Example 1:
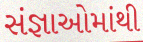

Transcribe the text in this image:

સંજ્ઞાઓમાંથી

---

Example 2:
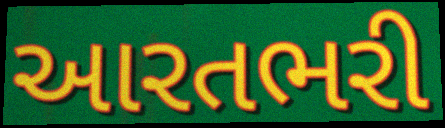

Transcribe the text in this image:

આરતભરી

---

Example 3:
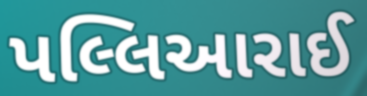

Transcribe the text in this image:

પલ્લિઆરાઈ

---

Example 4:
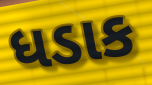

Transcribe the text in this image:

ધડાક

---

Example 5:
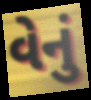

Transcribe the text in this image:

વેનું